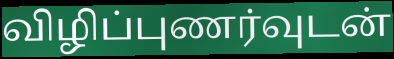
விழிப்புணர்வுடன்